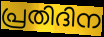
പ്രതിദിന